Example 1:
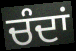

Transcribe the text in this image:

ਚੰਦਾਂ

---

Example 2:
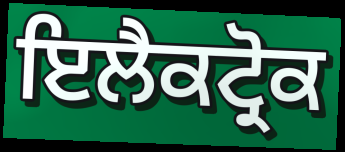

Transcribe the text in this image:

ਇਲੈਕਟ੍ਰੋਕ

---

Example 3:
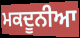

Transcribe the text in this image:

ਮਕਦੂਨੀਆ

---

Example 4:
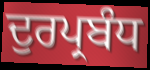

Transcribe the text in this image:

ਦੁਰਪ੍ਰਬੰਧ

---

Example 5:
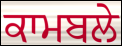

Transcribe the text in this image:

ਕਾਮਬਲੇ